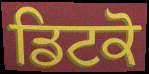
ਡਿਟਕੋ